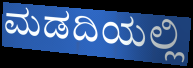
ಮಡದಿಯಲ್ಲಿ